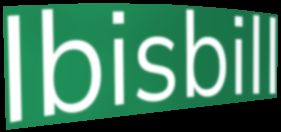
Ibisbill